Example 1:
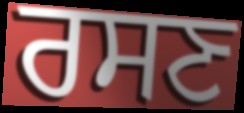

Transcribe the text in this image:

ਰਸਣ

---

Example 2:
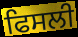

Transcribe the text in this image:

ਫਿਸਲੀ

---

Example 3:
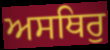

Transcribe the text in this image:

ਅਸਥਿਰੁ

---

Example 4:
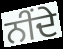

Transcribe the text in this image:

ਨੀਂਦੇ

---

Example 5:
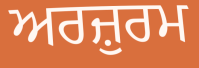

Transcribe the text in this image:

ਅਰਜ਼ੁਰਮ